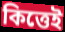
কিত্তেই